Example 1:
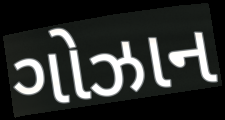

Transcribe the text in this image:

ગોઝાન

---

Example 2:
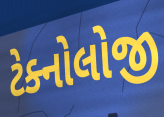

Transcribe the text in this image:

ટેક્નોલોજી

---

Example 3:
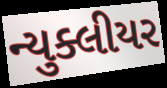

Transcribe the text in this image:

ન્યુક્લીયર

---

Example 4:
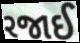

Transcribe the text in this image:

રજાઈ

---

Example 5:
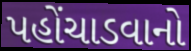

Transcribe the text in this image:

પહોંચાડવાનો